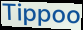
Tippoo